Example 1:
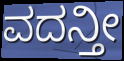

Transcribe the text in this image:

ವದನ್ತೀ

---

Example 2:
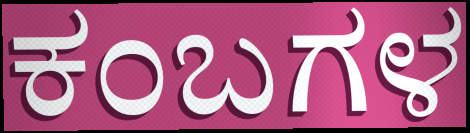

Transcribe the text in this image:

ಕಂಬಗಳ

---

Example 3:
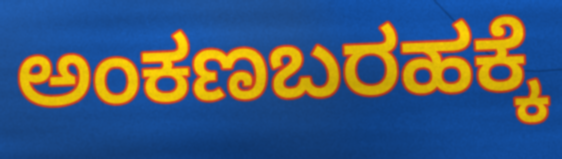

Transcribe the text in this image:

ಅಂಕಣಬರಹಕ್ಕೆ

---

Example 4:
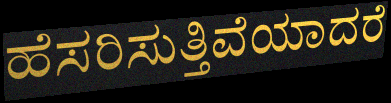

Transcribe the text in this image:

ಹೆಸರಿಸುತ್ತಿವೆಯಾದರೆ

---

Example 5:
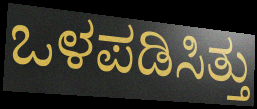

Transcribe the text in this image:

ಒಳಪಡಿಸಿತ್ತು